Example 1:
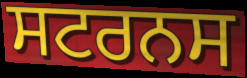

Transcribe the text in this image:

ਸਟਰਨਸ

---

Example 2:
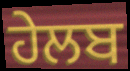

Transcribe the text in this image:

ਹੇਲਬ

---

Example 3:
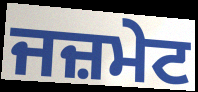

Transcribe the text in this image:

ਜਜ਼ਮੇਟ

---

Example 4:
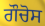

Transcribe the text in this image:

ਗੌਚੋਸ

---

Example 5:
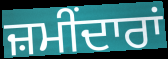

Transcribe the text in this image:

ਜ਼ਮੀਂਦਾਰਾਂ